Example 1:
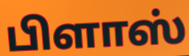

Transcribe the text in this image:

பிளாஸ்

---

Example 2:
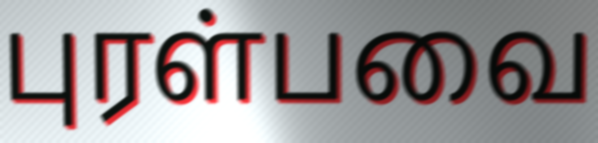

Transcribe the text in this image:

புரள்பவை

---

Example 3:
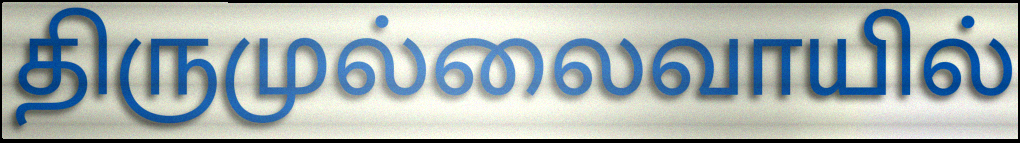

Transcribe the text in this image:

திருமுல்லைவாயில்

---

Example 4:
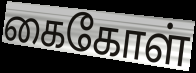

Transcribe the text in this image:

கைகோள்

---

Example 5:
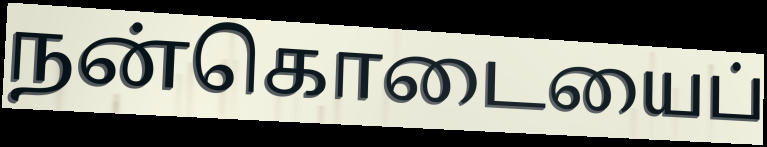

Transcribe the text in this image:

நன்கொடையைப்